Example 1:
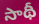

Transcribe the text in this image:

సాథీ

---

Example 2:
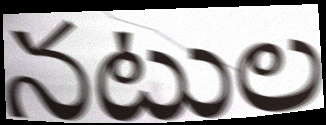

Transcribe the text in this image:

నటుల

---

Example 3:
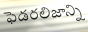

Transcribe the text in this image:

ఫెడరలిజాన్ని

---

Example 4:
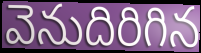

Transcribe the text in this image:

వెనుదిరిగిన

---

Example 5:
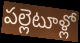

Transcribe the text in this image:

పల్లెటూళ్లో